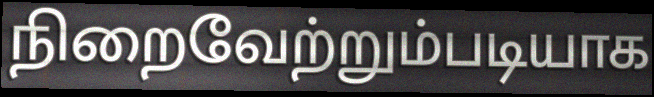
நிறைவேற்றும்படியாக